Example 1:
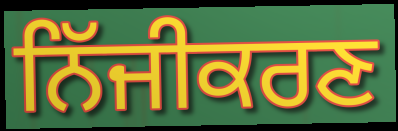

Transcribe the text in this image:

ਨਿੱਜੀਕਰਣ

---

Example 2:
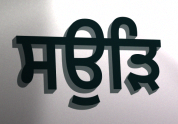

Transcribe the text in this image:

ਸਉੜਿ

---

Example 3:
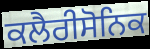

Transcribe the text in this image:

ਕਲੈਰੀਸੋਨਿਕ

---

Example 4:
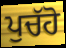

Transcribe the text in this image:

ਪੁਚੱਹੋ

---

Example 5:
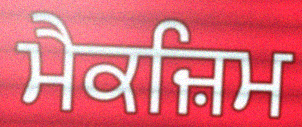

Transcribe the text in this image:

ਮੈਕਜ਼ਿਮ